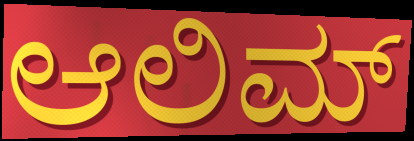
ಆಲಿಮ್